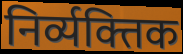
निर्व्यक्तिक